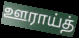
ஊராய்த்